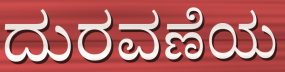
ದುರವಣೆಯ